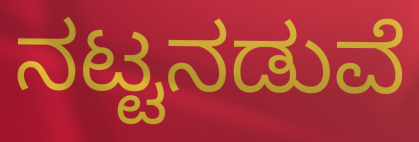
ನಟ್ಟನಡುವೆ